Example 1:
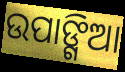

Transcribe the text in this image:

ଉପାଙ୍ଗିଆ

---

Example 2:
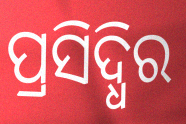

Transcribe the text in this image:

ପ୍ରସିଦ୍ଧିର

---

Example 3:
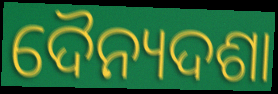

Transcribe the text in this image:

ଦୈନ୍ୟଦଶା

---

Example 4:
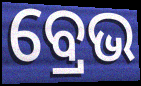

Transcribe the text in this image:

ବ୍ରେଭ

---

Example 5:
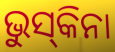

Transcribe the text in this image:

ଭୁସ୍‌କିନା